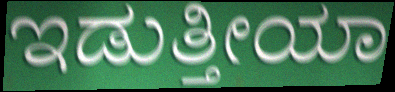
ಇಡುತ್ತೀಯಾ